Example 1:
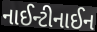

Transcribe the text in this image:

નાઈન્ટીનાઈન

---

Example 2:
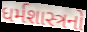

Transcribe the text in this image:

ધર્મશાસ્ત્રનો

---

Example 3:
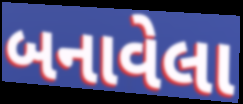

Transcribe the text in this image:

બનાવેલા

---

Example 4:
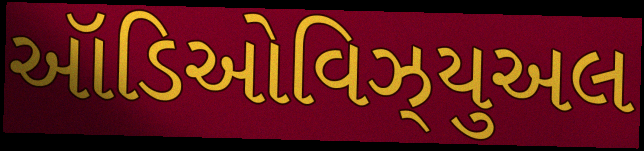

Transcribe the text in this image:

ઑડિઓવિઝ્યુઅલ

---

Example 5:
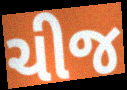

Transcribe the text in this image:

ચીજ